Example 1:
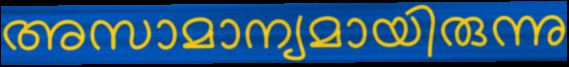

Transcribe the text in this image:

അസാമാന്യമായിരുന്നു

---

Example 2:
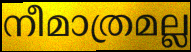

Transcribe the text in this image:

നീമാത്രമല്ല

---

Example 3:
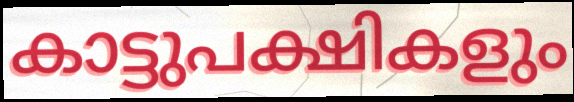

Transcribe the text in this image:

കാട്ടുപക്ഷികളും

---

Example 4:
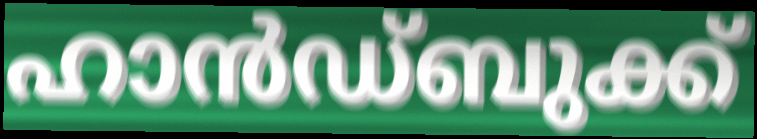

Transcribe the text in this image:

ഹാൻഡ്ബുക്ക്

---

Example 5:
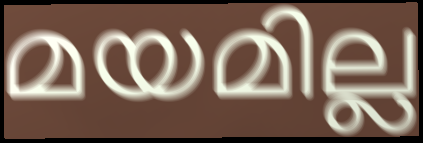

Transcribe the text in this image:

മയമില്ല